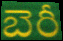
బెరీ